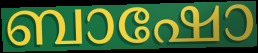
ബാഷോ